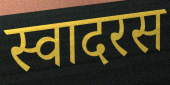
स्वादरस